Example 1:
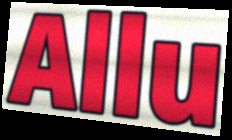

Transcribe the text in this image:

Allu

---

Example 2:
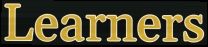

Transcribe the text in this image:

Learners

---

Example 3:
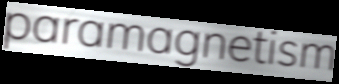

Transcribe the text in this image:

paramagnetism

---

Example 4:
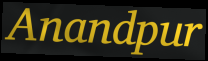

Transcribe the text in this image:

Anandpur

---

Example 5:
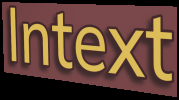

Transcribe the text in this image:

Intext